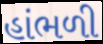
હાંભળી